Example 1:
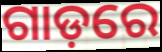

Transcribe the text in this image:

ଗାଡ଼ରେ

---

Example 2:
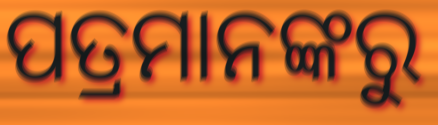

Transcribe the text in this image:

ପତ୍ରମାନଙ୍କରୁ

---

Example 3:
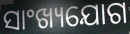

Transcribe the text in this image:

ସାଂଖ୍ଯଯୋଗ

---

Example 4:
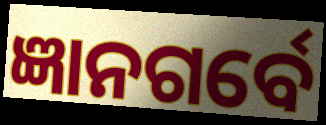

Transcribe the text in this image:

ଜ୍ଞାନଗର୍ବେ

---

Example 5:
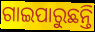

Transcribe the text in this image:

ଗାଇପାରୁଛନ୍ତି